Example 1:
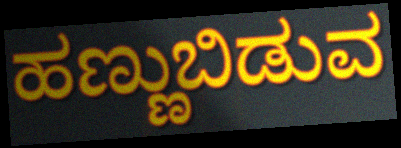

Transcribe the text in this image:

ಹಣ್ಣುಬಿಡುವ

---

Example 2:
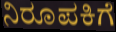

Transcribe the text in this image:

ನಿರೂಪಕಿಗೆ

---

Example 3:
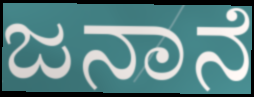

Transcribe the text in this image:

ಜನಾನೆ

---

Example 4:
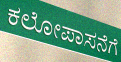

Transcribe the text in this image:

ಕಲೋಪಾಸನೆಗೆ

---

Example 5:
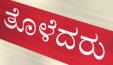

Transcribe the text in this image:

ತೊಳೆದರು